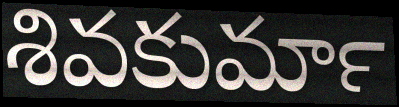
శివకుమార్‍